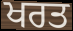
ਖਰਤ